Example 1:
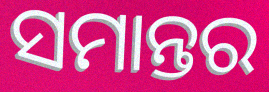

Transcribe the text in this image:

ସମାନ୍ତର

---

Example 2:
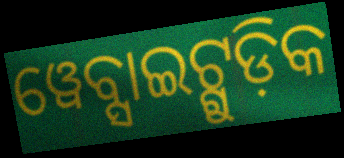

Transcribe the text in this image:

ୱେବ୍ସାଇଟ୍ଗୁଡ଼ିକ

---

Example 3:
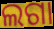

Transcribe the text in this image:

ଲଗା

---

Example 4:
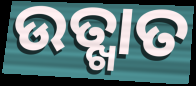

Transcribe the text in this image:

ଉତ୍ଖାତ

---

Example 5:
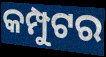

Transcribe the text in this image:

କମ୍ପୁଟର